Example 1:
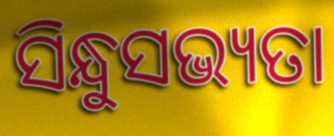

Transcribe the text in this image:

ସିନ୍ଧୁସଭ୍ୟତା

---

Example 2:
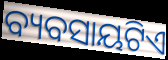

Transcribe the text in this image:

ବ୍ୟବସାୟଟିଏ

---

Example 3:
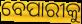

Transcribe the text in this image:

ବେପାରୀକୁ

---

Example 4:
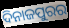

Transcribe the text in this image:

ଦିନାଜପୁରର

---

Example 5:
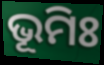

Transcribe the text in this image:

ଭୂମିଃ